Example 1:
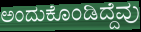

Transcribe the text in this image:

ಅಂದುಕೊಂಡಿದ್ದೆವು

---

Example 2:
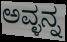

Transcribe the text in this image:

ಅವ್ಳನ್ನ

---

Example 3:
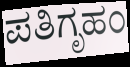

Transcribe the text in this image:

ಪತಿಗೃಹಂ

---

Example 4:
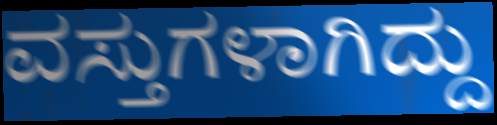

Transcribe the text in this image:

ವಸ್ತುಗಳಾಗಿದ್ದು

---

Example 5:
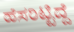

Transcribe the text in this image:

ಹೆಸರಿಟ್ಟಿದ್ದೆ